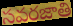
సవరజాతి